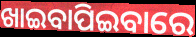
ଖାଇବାପିଇବାରେ